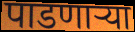
पाडणाऱ्या